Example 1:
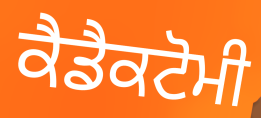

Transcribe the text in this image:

ਕੈਡੈਕਟੋਮੀ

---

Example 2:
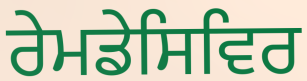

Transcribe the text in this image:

ਰੇਮਡੇਸਿਵਿਰ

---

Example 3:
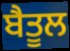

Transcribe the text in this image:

ਬੈਤੂਲ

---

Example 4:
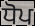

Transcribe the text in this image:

ਧੋਪ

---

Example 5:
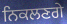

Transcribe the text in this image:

ਨਿਕਲਣਗੇ